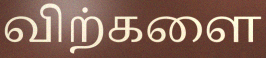
விற்களை